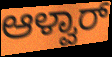
ಆಳ್ವಾರ್